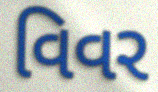
વિવર